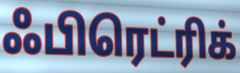
ஃபிரெட்ரிக்